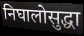
निघालोसुद्धा